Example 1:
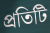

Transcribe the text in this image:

প্রতিটি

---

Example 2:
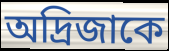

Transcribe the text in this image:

অদ্রিজাকে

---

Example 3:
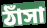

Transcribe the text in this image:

ঠাঁসা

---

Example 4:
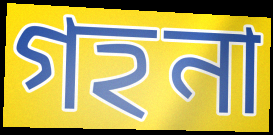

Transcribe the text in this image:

গহনা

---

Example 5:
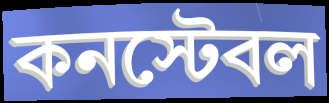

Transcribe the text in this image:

কনস্টেবল